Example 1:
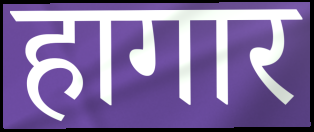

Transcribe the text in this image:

हागार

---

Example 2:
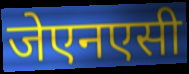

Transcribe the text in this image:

जेएनएसी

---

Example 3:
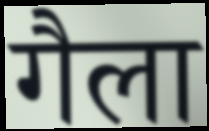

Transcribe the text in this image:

गैला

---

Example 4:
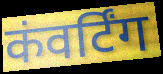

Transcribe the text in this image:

कंवर्टिंग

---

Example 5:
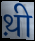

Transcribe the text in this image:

थ़ी